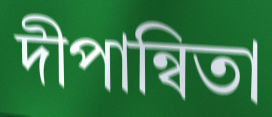
দীপান্বিতা